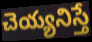
చెయ్యనిస్తే